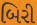
બિરી